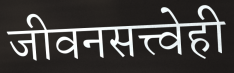
जीवनसत्त्वेही